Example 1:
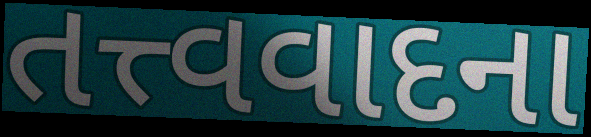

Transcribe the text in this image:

તત્ત્વવાદના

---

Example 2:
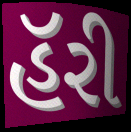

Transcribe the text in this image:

હૅરી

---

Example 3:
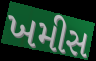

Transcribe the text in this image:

ખમીસ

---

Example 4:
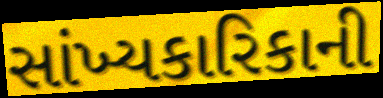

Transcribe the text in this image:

સાંખ્યકારિકાની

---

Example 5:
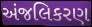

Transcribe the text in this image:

અંજલિકરણ